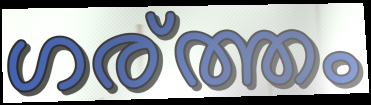
ഗര്ത്തം